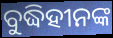
ବୁଦ୍ଧିହୀନଙ୍କ